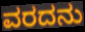
ವರದನು